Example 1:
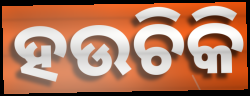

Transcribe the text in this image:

ହଉଚିକି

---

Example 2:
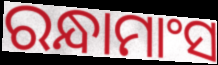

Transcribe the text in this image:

ରନ୍ଧାମାଂସ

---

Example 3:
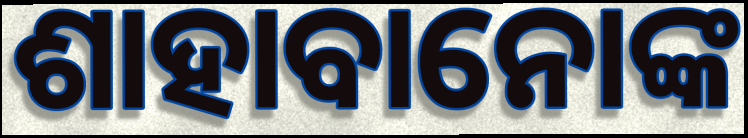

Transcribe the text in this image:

ଶାହାବାନୋଙ୍କ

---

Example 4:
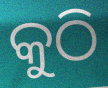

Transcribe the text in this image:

କୁଠି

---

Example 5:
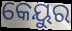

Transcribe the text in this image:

କେୟୁର